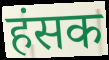
हंसक